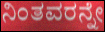
ನಿಂತವರನ್ನೇ